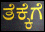
ತೆಕ್ಕೆಗೆ